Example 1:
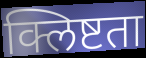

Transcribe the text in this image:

क्लिष्टता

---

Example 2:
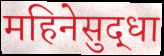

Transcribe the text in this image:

महिनेसुद्धा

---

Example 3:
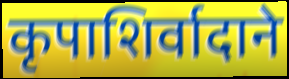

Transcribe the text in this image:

कृपाशिर्वादाने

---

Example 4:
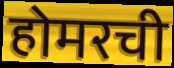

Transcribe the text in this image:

होमरची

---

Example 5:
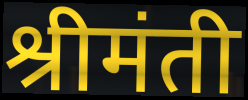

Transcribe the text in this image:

श्रीमंती